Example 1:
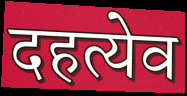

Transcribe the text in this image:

दहत्येव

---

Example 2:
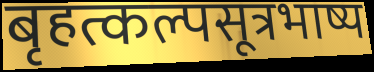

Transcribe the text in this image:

बृहत्कल्पसूत्रभाष्य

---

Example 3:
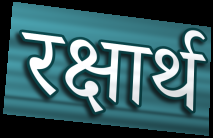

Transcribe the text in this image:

रक्षार्थ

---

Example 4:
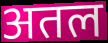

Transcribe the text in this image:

अतल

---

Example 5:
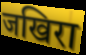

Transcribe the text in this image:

जखिरा